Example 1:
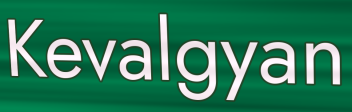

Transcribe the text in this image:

Kevalgyan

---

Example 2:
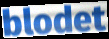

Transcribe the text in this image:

blodet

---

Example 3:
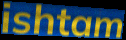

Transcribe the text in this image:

ishtam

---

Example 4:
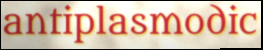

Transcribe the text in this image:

antiplasmodic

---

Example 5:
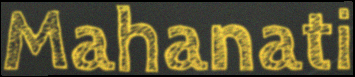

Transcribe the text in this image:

Mahanati